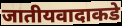
जातीयवादाकडे